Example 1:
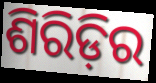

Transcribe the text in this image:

ଶିରିଡ଼ିର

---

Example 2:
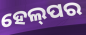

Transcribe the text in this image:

ହେଲ୍‌ପର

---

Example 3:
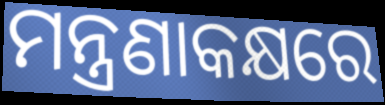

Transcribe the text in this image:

ମନ୍ତ୍ରଣାକକ୍ଷରେ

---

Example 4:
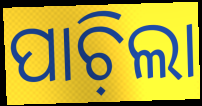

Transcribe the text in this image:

ପାଚ଼ିଲା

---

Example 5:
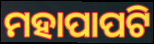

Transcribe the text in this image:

ମହାପାପଟି